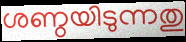
ശണ്ഠയിടുന്നതു